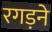
रगड़ने